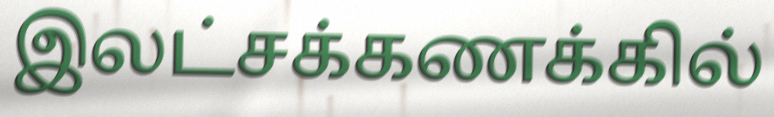
இலட்சக்கணக்கில்